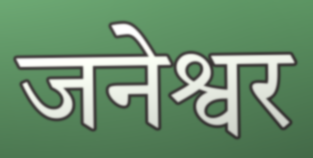
जनेश्वर